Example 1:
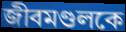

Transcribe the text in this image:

জীবমণ্ডলকে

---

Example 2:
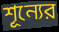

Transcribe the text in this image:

শূন্যের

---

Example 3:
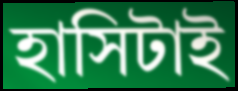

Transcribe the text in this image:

হাসিটাই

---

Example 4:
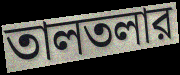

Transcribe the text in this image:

তালতলার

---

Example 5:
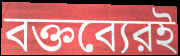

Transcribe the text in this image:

বক্তব্যেরই